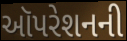
ઑપરેશનની